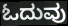
ಓದುವು